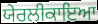
ਯੇਰਲੀਕਾਇਆ